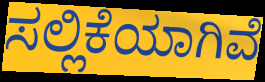
ಸಲ್ಲಿಕೆಯಾಗಿವೆ